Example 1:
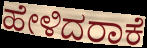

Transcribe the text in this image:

ಹೇಳಿದರಾಕೆ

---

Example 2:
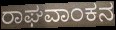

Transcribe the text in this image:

ರಾಘವಾಂಕನ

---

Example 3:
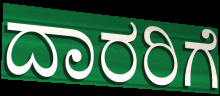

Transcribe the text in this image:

ದಾರರಿಗೆ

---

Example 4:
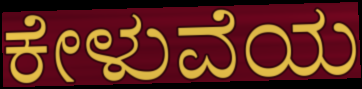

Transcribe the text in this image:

ಕೇಳುವೆಯ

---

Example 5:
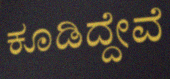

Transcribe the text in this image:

ಕೂಡಿದ್ದೇವೆ